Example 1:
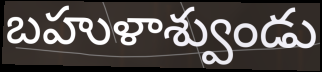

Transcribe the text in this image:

బహుళాశ్వుండు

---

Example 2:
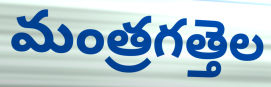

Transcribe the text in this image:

మంత్రగత్తెల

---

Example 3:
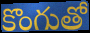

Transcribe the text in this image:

కొంగుతో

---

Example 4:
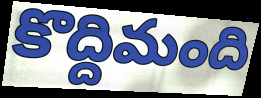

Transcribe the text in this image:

కొద్దిమంది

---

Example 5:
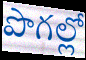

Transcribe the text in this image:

పొగల్లో